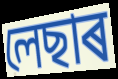
লেছাৰ